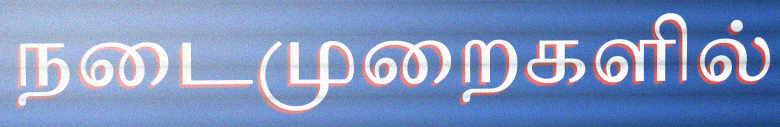
நடைமுறைகளில்